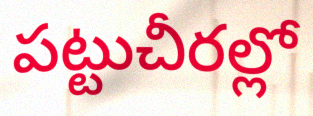
పట్టుచీరల్లో